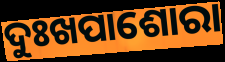
ଦୁଃଖପାଶୋରା